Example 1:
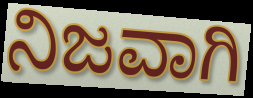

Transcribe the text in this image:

ನಿಜವಾಗಿ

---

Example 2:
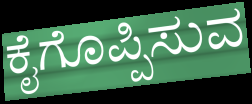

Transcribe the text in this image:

ಕೈಗೊಪ್ಪಿಸುವ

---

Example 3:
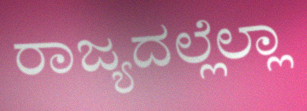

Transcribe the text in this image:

ರಾಜ್ಯದಲ್ಲೆಲ್ಲಾ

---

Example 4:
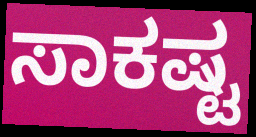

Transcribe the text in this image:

ಸಾಕಷ್ಟ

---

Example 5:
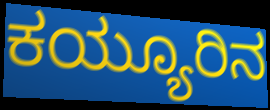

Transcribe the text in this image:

ಕಯ್ಯೂರಿನ